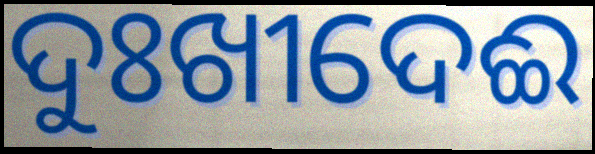
ଦୁଃଖୀଦେଈ